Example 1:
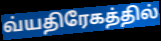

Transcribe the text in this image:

வ்யதிரேகத்தில்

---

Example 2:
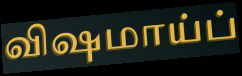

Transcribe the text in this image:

விஷமாய்ப்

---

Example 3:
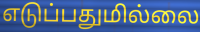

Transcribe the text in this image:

எடுப்பதுமில்லை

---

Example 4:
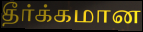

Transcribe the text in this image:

தீர்க்கமான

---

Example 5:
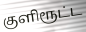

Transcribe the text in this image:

குளிரூட்ட